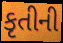
કૃતીની